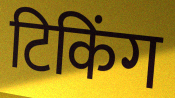
टिकिंग